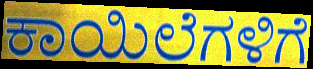
ಕಾಯಿಲೆಗಳಿಗೆ